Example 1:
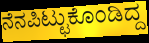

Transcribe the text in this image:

ನೆನಪಿಟ್ಟುಕೊಂಡಿದ್ದ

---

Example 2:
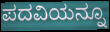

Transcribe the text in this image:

ಪದವಿಯನ್ನೂ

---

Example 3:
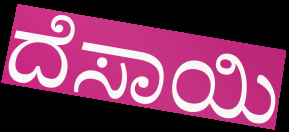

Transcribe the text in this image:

ದೆಸಾಯಿ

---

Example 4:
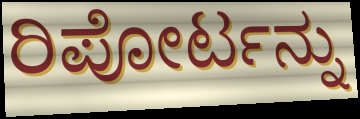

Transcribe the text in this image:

ರಿಪೋರ್ಟನ್ನು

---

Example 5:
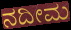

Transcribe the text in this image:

ನದೀಮ